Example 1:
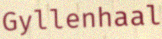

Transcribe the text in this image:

Gyllenhaal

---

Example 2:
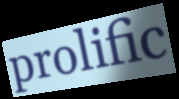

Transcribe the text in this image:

prolific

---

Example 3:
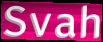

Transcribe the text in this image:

Svah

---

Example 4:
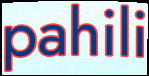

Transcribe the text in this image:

pahili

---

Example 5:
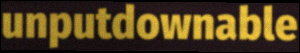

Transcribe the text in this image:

unputdownable